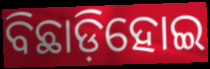
ବିଛାଡ଼ିହୋଇ